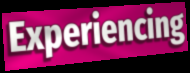
Experiencing